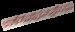
ಉಳಿಸುವುದಿಲ್ಲವೆಂದು